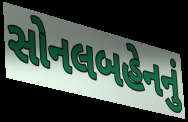
સોનલબહેનનું